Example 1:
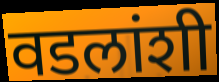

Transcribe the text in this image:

वडलांशी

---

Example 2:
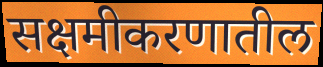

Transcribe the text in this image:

सक्षमीकरणातील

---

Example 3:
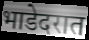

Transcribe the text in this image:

भाडेदरात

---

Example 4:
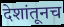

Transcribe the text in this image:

देशांतूनच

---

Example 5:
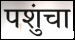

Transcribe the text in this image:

पशुंचा